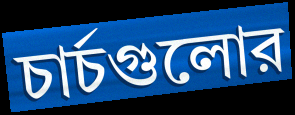
চার্চগুলোর